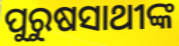
ପୁରୁଷସାଥୀଙ୍କ